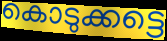
കൊടുക്കട്ടെ